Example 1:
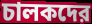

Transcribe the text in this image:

চালকদের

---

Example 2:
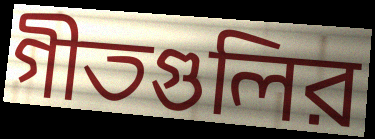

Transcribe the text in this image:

গীতগুলির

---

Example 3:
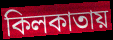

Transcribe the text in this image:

কিলকাতায়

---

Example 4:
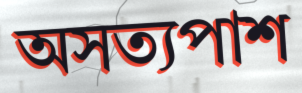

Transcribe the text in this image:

অসত্যপাশ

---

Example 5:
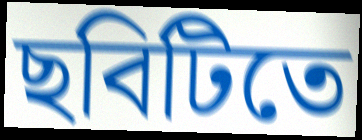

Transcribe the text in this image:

ছবিটিতে